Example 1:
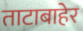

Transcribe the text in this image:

ताटाबाहेर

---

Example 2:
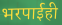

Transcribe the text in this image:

भरपाईही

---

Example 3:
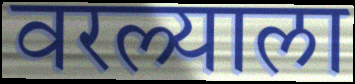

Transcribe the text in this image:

वरल्याला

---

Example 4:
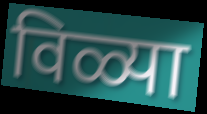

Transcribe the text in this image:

विळ्या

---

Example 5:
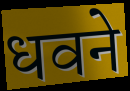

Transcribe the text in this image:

धवने